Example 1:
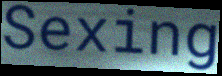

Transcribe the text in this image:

Sexing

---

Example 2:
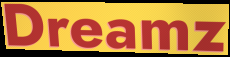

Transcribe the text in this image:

Dreamz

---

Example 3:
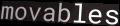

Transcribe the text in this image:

movables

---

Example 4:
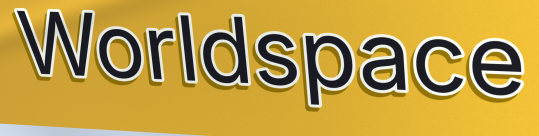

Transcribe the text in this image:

Worldspace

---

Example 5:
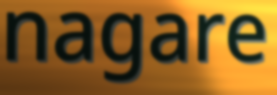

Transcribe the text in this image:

nagare